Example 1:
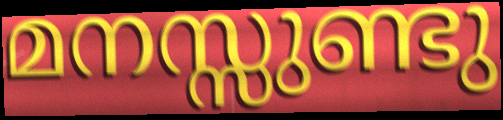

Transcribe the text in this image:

മനസ്സുണ്ടു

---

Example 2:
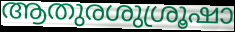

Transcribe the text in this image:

ആതുരശുശ്രൂഷാ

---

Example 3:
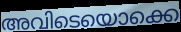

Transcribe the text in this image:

അവിടെയൊക്കെ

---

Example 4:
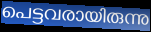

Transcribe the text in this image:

പെട്ടവരായിരുന്നു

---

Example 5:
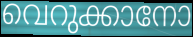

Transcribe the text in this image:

വെറുക്കാനോ